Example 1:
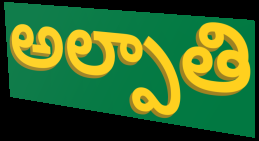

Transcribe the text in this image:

అల్పాతి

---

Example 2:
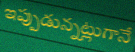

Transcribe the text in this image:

ఇప్పుడున్నట్లుగానే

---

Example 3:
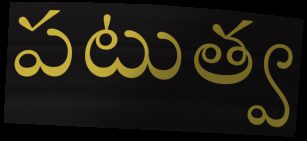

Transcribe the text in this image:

పటుత్వ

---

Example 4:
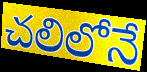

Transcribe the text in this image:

చలిలోనే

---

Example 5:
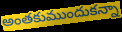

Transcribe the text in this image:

అంతకుముందుకన్నా